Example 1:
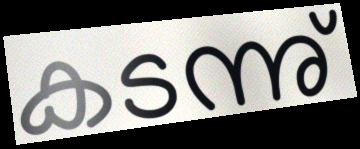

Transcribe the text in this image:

കടന്നു്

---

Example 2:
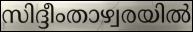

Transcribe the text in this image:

സിദ്ദീംതാഴ്വരയിൽ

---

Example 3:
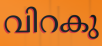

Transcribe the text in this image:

വിറകു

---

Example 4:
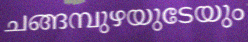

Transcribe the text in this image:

ചങ്ങമ്പുഴയുടേയും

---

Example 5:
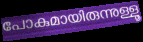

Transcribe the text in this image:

പോകുമായിരുന്നുള്ളൂ